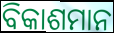
ବିକାଶମାନ